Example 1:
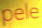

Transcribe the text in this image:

pele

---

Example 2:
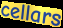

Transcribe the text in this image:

cellars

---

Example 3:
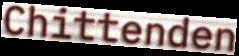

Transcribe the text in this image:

Chittenden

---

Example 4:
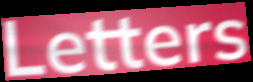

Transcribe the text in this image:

Letters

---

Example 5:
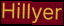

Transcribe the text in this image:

Hillyer